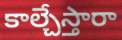
కాల్చేస్తారా